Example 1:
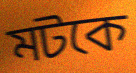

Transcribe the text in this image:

মটকে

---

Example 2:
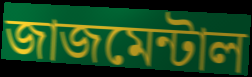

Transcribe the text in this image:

জাজমেন্টাল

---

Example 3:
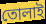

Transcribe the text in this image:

তোলাই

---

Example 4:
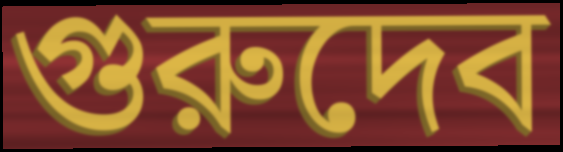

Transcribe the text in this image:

গুরুদেব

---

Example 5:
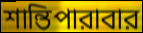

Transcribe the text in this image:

শান্তিপারাবার